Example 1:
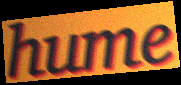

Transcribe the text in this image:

hume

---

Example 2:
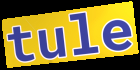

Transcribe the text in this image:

tule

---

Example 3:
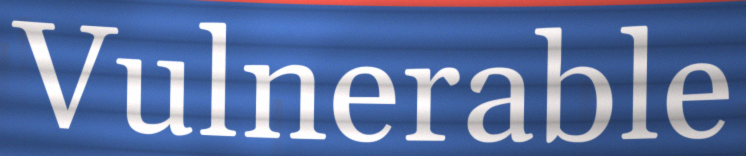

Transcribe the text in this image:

Vulnerable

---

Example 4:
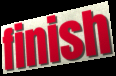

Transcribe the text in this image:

finish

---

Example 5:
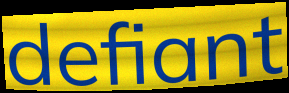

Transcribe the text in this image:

defiant